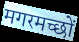
मगरमच्छों